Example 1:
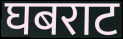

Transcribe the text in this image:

घबराट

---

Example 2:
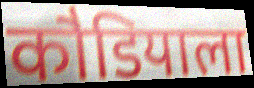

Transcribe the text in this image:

कौडियाला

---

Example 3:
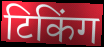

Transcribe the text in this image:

टिकिंग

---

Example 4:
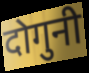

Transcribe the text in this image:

दोगुनी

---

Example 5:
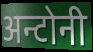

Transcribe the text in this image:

अन्टोनी